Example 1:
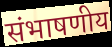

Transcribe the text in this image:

संभाषणीय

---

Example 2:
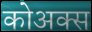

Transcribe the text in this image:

कोअक्स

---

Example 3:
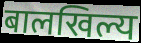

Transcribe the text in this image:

बालखिल्य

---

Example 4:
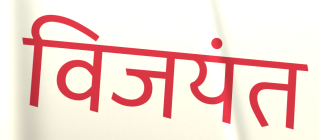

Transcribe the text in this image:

विजयंत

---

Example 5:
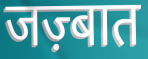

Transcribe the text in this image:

जज़्बात